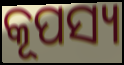
କୂପସ୍ୟ